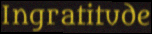
Ingratitude